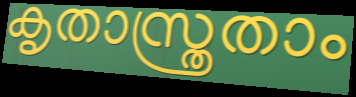
കൃതാസ്ത്രതാം